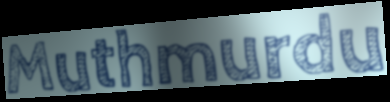
Muthmurdu